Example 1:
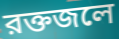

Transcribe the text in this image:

রক্তজলে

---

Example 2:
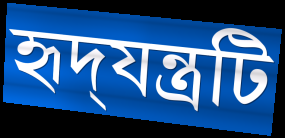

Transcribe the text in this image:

হৃদ্‌যন্ত্রটি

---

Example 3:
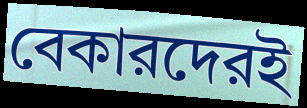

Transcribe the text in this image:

বেকারদেরই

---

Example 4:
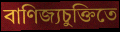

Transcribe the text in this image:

বাণিজ্যচুক্তিতে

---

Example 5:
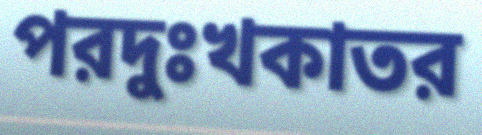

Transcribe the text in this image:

পরদুঃখকাতর